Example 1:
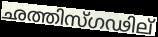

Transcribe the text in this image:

ഛത്തിസ്ഗഢില്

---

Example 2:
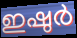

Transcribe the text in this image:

ഇഷുർ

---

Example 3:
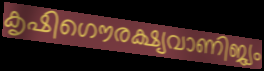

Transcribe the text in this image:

കൃഷിഗൌരക്ഷ്യവാണിജ്യം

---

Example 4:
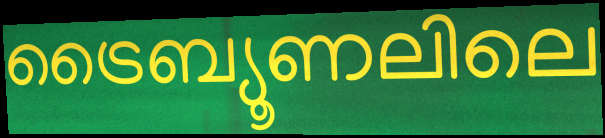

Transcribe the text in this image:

ട്രൈബ്യൂണലിലെ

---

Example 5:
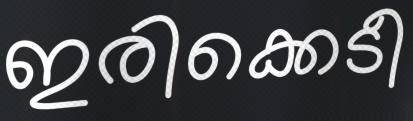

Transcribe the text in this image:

ഇരിക്കെടീ